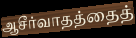
ஆசீர்வாதத்தைத்